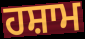
ਹਸ਼ਾਮ